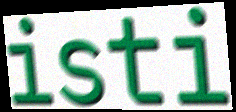
isti